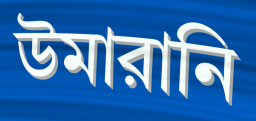
উমারানি